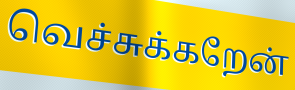
வெச்சுக்கறேன்